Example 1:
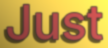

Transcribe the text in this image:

Just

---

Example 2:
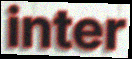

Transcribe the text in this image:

inter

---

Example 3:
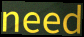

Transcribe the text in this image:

need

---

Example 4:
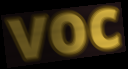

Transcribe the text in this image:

voc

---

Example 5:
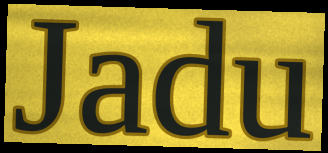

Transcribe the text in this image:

Jadu